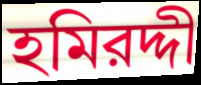
হমিরদ্দী